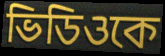
ভিডিওকে